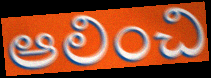
ఆలించి